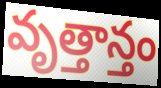
వృత్తాన్తం